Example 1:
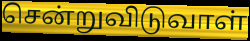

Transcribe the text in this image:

சென்றுவிடுவாள்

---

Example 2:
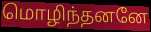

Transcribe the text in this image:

மொழிந்தனனே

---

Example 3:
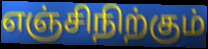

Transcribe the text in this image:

எஞ்சிநிற்கும்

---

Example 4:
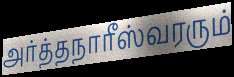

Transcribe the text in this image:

அர்த்தநாரீஸ்வரரும்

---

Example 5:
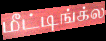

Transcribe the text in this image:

மீட்டிங்க்ல